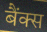
बैंक्स